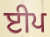
ਈਪ